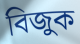
বিজুক